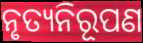
ନୃତ୍ୟନିରୂପଣ